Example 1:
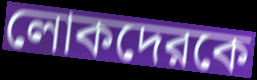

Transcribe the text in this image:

লোকদেরকে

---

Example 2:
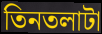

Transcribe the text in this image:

তিনতলাটা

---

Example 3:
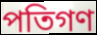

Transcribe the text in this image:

পতিগণ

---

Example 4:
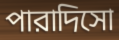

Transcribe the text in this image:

পারাদিসো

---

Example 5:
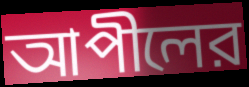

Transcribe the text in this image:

আপীলের